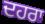
ਦਹਰਾ